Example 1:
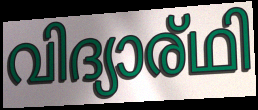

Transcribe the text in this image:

വിദ്യാര്ഥി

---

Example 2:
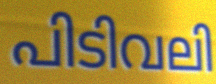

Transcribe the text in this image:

പിടിവലി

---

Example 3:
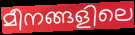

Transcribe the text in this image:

മീനങ്ങളിലെ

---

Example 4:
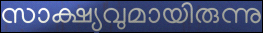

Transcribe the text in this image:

സാക്ഷ്യവുമായിരുന്നു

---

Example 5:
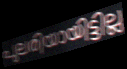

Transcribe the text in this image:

പുലരിയായിട്ടില്ല